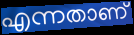
എന്നതാണ്